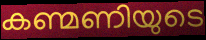
കണ്മണിയുടെ